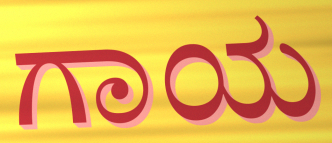
ಗಾಯ